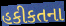
હકીકતના